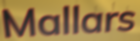
Mallars